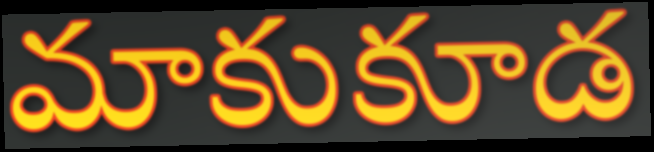
మాకుకూడ